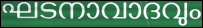
ഘടനാവാദവും